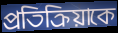
প্রতিক্রিয়াকে